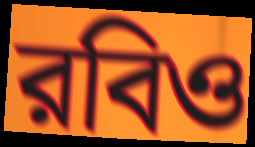
রবিও